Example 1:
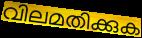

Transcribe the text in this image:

വിലമതിക്കുക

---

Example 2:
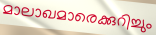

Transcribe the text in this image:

മാലാഖമാരെക്കുറിച്ചും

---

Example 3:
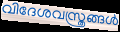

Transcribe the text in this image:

വിദേശവസ്ത്രങ്ങൾ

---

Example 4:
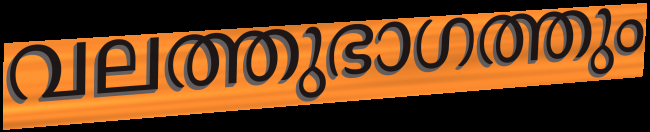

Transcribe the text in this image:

വലത്തുഭാഗത്തും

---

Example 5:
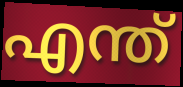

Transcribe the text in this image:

എന്ത്